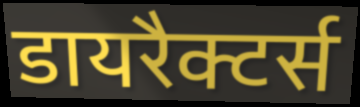
डायरैक्टर्स